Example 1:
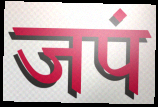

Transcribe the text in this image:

जपं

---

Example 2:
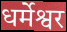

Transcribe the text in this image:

धर्मेश्वर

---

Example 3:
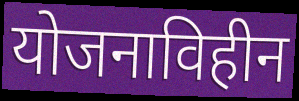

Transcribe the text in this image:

योजनाविहीन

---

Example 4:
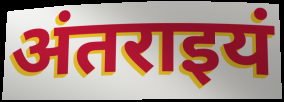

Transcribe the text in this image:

अंतराइयं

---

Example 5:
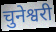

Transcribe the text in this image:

चुनेश्वरी